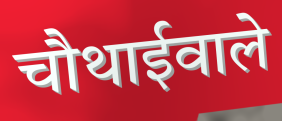
चौथाईवाले